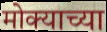
मोक्याच्या